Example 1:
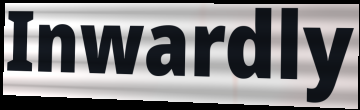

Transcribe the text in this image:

Inwardly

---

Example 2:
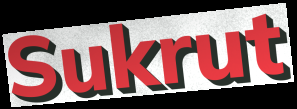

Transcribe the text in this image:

Sukrut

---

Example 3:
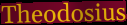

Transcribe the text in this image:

Theodosius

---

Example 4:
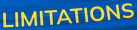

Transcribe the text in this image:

LIMITATIONS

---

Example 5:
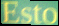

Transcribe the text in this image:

Esto